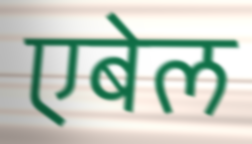
एबेल